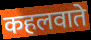
कहलवाते